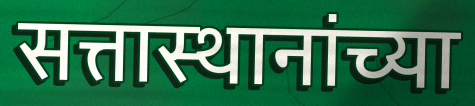
सत्तास्थानांच्या